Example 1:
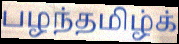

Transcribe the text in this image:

பழந்தமிழ்க்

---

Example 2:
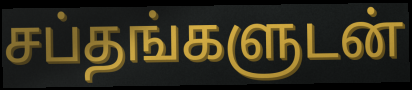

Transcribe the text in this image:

சப்தங்களுடன்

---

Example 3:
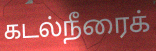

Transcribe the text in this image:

கடல்நீரைக்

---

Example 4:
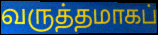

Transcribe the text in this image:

வருத்தமாகப்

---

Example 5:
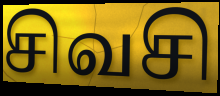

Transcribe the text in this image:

சிவசி